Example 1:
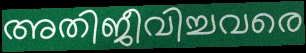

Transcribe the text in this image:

അതിജീവിച്ചവരെ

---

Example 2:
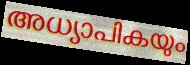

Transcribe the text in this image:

അധ്യാപികയും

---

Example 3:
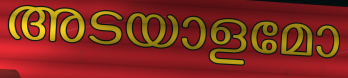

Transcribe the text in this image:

അടയാളമോ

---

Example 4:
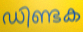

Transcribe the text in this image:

ഡിണ്ടക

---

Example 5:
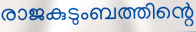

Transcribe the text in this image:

രാജകുടുംബത്തിന്റെ